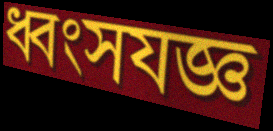
ধ্বংসযজ্ঞ